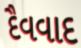
દૈવવાદ